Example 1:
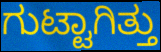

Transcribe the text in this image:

ಗುಟ್ಟಾಗಿತ್ತು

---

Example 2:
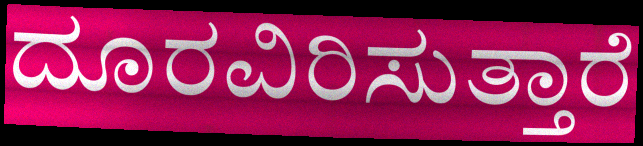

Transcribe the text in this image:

ದೂರವಿರಿಸುತ್ತಾರೆ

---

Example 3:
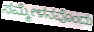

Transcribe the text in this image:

ಸಮ್ಮೇಳನವೊಂದು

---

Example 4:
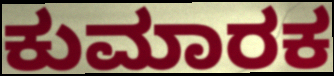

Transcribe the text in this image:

ಕುಮಾರಕ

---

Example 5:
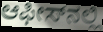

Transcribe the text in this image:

ಆಫೀಸ್‌ನಲ್ಲಿ